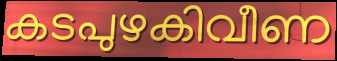
കടപുഴകിവീണ